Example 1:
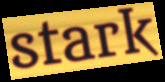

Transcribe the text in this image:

stark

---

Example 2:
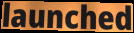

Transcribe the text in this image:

launched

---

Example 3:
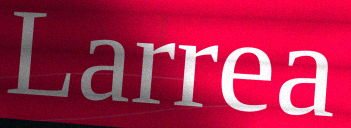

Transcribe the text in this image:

Larrea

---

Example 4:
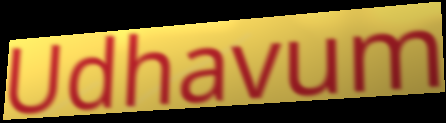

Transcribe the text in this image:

Udhavum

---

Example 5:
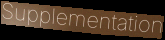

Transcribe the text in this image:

Supplementation